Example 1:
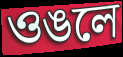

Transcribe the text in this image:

ওঙলে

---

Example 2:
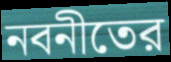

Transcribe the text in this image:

নবনীতের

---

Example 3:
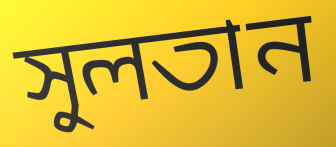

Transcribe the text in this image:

সুলতান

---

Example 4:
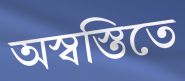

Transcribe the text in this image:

অস্বস্তিতে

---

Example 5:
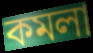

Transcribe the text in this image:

কমলা